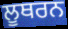
ਲੂਥਰਨ